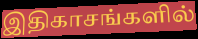
இதிகாசங்களில்